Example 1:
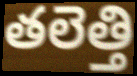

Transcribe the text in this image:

తలెత్తి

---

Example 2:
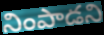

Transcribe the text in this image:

నింపాడని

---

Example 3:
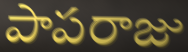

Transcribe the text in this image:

పాపరాజు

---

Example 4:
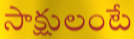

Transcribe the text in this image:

సాక్షులంటే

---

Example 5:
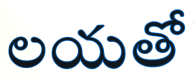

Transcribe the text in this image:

లయతో